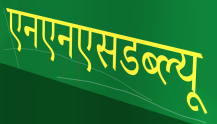
एनएनएसडब्ल्यू